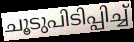
ചൂടുപിടിപ്പിച്ച്